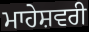
ਮਾਹੇਸ਼ਵਰੀ